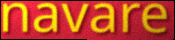
navare